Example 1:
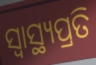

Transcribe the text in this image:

ସ୍ବାସ୍ଥ୍ୟପ୍ରତି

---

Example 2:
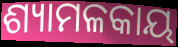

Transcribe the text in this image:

ଶ୍ୟାମଳକାୟ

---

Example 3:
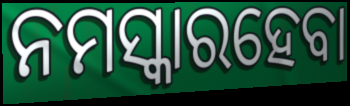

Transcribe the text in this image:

ନମସ୍କାରହେବା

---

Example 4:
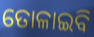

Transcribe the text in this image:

ତୋଳାଇବି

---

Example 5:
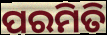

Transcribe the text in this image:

ପରମିତି